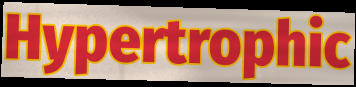
Hypertrophic